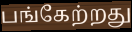
பங்கேற்றது